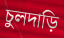
চুলদাড়ি